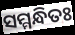
ସମ୍ମନ୍ଧିତଃ